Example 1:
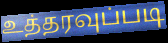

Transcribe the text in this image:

உத்தரவுப்படி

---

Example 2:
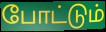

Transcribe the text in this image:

போட்டும்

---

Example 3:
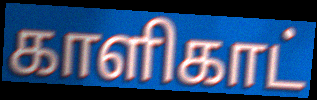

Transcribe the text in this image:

காளிகாட்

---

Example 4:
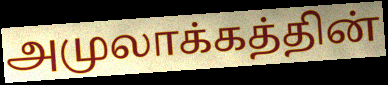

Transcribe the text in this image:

அமுலாக்கத்தின்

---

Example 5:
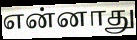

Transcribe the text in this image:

என்னாது